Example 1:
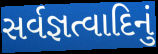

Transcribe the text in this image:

સર્વજ્ઞત્વાદિનું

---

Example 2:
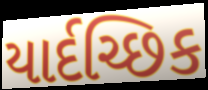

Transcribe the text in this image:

યાર્દચ્છિક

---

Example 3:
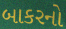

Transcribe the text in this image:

બાકરનો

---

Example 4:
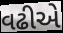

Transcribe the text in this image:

વઢીએ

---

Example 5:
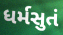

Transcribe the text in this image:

ધર્મસુતં